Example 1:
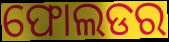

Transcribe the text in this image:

ଫୋଲଡର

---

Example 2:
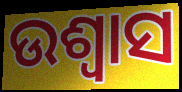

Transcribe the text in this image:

ଉଶ୍ୱାସ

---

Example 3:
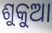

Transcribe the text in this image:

ଶୁକୁଆ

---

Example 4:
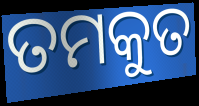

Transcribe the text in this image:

ତମକୁତ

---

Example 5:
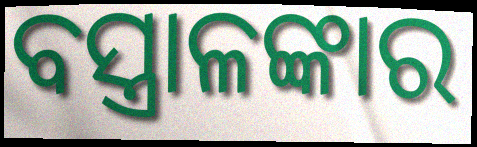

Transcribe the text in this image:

ବସ୍ତ୍ରାଳଙ୍କାର